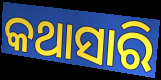
କଥାସାରି